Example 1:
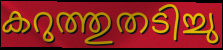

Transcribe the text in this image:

കറുത്തുതടിച്ചു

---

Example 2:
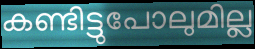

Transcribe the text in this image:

കണ്ടിട്ടുപോലുമില്ല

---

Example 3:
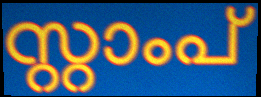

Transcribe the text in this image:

സ്റ്റാംപ്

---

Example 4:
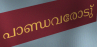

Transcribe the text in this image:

പാണ്ഡവരോടു്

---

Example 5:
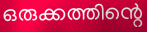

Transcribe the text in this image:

ഒരുക്കത്തിന്റെ